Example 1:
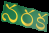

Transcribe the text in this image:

నరక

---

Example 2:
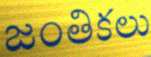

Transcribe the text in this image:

జంతికలు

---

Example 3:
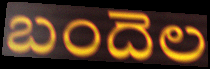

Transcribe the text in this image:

బందెల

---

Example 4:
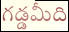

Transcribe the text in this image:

గడ్డమీది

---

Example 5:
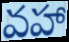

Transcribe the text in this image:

వహా